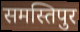
समस्तिपुर